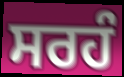
ਸਰਹੰ